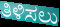
ತಿಳಿಸಲು